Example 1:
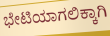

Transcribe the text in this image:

ಭೇಟಿಯಾಗಲಿಕ್ಕಾಗಿ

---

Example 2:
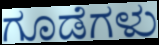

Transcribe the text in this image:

ಗೂಡೆಗಳು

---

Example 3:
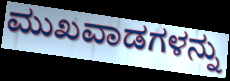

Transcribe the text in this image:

ಮುಖವಾಡಗಳನ್ನು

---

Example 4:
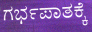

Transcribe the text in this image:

ಗರ್ಭಪಾತಕ್ಕೆ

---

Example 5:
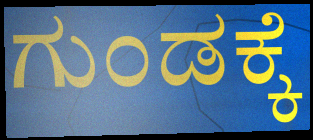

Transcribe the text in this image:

ಗುಂಡಕ್ಕೆ